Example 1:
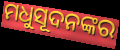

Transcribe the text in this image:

ମଧୁସୂଦନଙ୍କର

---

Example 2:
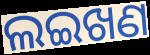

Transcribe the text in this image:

ଲଇଖଣ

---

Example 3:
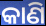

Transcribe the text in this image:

କାଣି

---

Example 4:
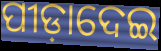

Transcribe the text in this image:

ପୀଡ଼ାଦେଇ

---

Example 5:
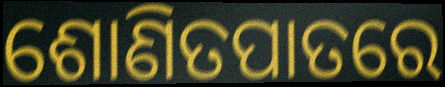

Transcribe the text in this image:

ଶୋଣିତପାତରେ